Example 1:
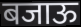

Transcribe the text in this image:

बजाऊ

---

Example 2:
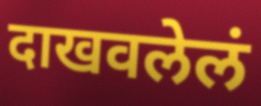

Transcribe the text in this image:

दाखवलेलं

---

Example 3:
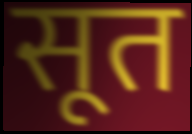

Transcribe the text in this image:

सूत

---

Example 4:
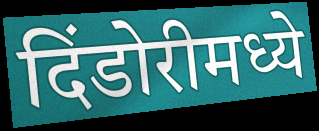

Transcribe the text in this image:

दिंडोरीमध्ये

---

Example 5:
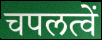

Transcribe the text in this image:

चपलत्वें